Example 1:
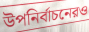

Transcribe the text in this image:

উপনির্বাচনেরও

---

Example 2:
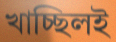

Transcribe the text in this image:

খাচ্ছিলই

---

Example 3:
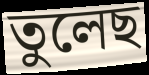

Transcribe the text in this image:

তুলেছ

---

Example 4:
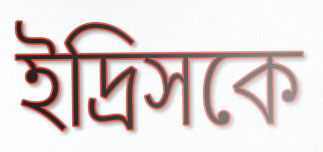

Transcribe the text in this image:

ইদ্রিসকে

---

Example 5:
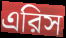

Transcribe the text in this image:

এরিস